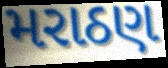
મરાઠણ